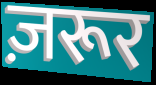
ज़रूर